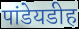
पांडेयडीह